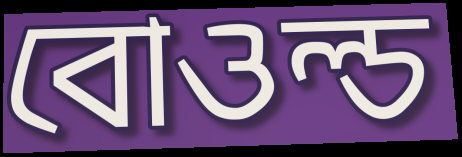
বোওল্ড